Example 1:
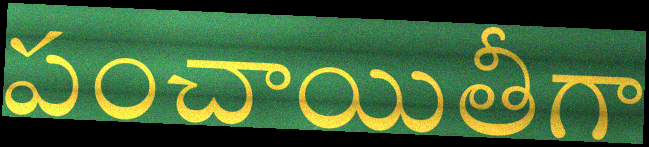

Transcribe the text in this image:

పంచాయితీగా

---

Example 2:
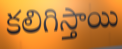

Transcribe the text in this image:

కలిగిస్తాయి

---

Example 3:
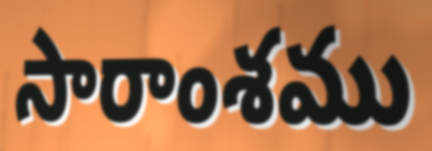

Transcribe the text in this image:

సారాంశము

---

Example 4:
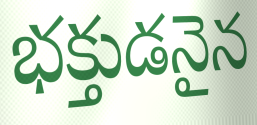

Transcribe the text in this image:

భక్తుడనైన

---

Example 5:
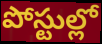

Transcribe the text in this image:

పోస్టుల్లో